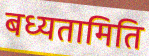
बध्यतामिति